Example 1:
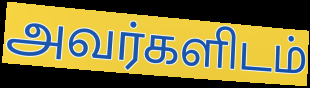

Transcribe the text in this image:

அவர்களிடம்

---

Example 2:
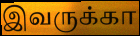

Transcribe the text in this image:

இவருக்கா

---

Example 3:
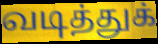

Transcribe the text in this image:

வடித்துக்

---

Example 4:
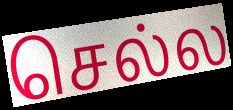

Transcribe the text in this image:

செல்ல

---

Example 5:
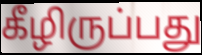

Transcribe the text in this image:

கீழிருப்பது